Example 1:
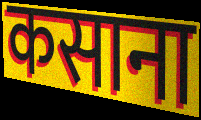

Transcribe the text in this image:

कसाना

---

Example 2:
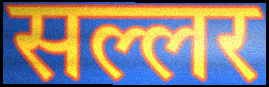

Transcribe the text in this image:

सल्लर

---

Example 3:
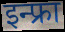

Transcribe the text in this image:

इन्फ्रा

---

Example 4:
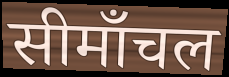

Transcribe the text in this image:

सीमाँचल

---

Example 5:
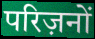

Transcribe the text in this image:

परिज़नों